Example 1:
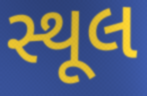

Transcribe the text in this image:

સ્થૂલ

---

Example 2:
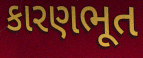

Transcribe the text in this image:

કારણભૂત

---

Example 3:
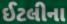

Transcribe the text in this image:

ઈટલીના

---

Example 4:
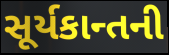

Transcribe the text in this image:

સૂર્યકાન્તની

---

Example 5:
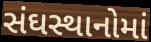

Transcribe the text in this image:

સંઘસ્થાનોમાં